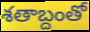
శతాబ్దంతో